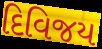
દિવિજય